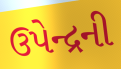
ઉપેન્દ્રની